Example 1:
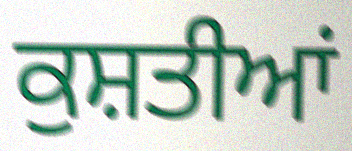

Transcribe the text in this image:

ਕੁਸ਼ਤੀਆਂ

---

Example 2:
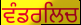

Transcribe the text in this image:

ਵੰਡਰਲਿਚ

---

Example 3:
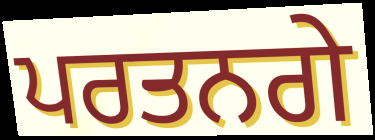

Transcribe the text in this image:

ਪਰਤਨਗੇ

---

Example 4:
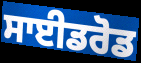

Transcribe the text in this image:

ਸਾਈਡਰੋਡ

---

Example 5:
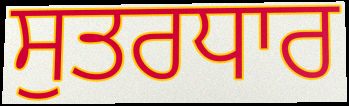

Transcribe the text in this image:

ਸੁਤਰਧਾਰ